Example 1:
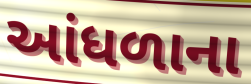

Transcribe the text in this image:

આંધળાના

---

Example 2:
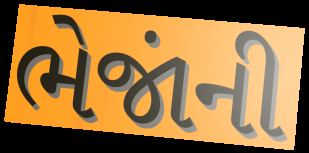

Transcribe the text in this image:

ભેજાંની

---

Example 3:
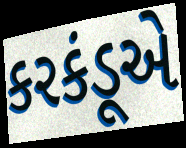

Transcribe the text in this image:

કરકંડૂએ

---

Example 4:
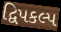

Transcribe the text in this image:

દ્વિપકલ્પ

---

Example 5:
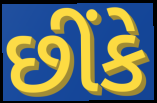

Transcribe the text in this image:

છીંકે